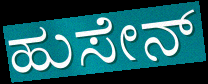
ಹುಸೇನ್